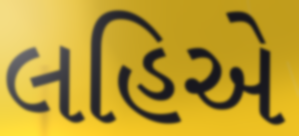
લહિએ